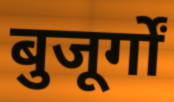
बुजूर्गों